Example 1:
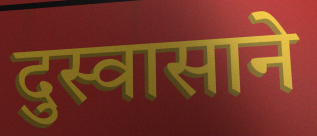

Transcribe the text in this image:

दुस्वासाने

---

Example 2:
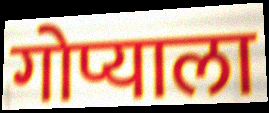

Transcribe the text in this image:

गोप्याला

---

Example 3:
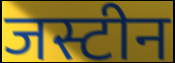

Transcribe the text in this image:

जस्टीन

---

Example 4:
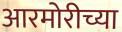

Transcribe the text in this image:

आरमोरीच्या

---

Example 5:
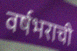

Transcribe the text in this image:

वर्षभराची